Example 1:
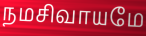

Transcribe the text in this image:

நமசிவாயமே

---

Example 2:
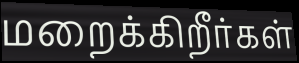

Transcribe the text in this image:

மறைக்கிறீர்கள்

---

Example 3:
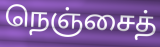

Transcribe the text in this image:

நெஞ்சைத்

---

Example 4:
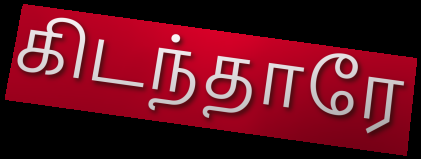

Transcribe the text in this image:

கிடந்தாரே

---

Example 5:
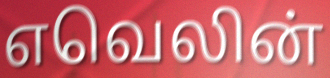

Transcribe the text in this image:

எவெலின்